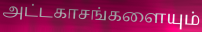
அட்டகாசங்களையும்